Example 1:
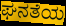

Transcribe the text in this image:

ಘನತೆಯ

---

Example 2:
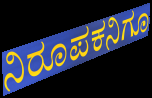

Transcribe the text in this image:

ನಿರೂಪಕನಿಗೂ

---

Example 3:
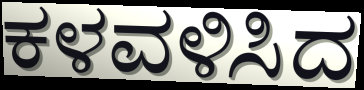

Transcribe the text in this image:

ಕಳವಳಿಸಿದ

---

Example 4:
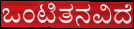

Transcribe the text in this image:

ಒಂಟಿತನವಿದೆ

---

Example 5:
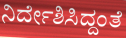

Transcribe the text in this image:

ನಿರ್ದೇಶಿಸಿದ್ದಂತೆ